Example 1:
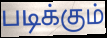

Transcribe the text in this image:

படிக்கும்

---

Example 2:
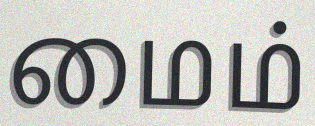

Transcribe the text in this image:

மைம்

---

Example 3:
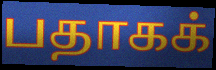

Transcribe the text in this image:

பதாகக்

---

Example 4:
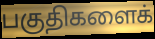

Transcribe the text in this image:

பகுதிகளைக்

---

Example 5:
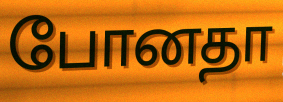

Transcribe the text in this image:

போனதா